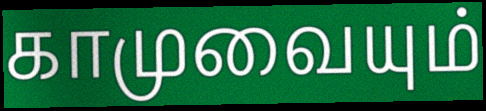
காமுவையும்